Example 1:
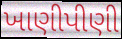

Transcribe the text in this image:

ખાણીપીણી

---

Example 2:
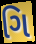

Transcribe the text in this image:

ગિ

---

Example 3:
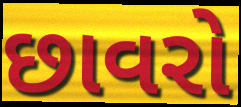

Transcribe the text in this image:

છાવરો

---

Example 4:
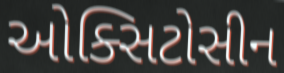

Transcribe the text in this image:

ઓક્સિટોસીન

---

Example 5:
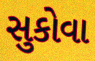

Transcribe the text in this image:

સુકોવા